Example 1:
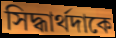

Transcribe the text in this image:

সিদ্ধার্থদাকে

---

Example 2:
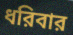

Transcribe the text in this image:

ধরিবার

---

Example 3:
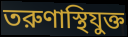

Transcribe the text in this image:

তরুণাস্থিযুক্ত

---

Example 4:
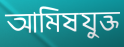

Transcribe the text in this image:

আমিষযুক্ত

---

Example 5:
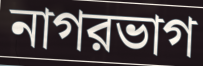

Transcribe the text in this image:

নাগরভাগ